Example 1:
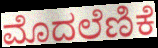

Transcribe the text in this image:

ಮೊದಲೆಣಿಕೆ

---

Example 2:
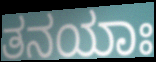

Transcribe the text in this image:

ತನಯಾಃ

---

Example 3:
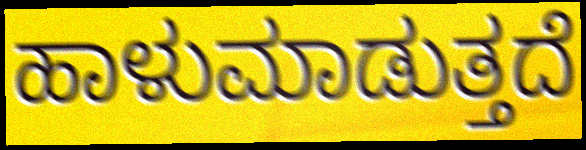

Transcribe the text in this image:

ಹಾಳುಮಾಡುತ್ತದೆ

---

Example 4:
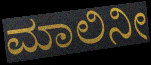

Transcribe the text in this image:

ಮಾಲಿನೀ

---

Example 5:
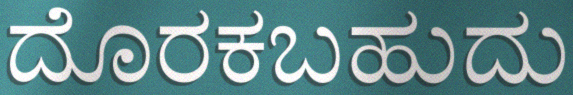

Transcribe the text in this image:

ದೊರಕಬಹುದು